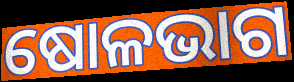
ଷୋଳଭାଗ